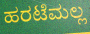
ಹರಟೆಮಲ್ಲ